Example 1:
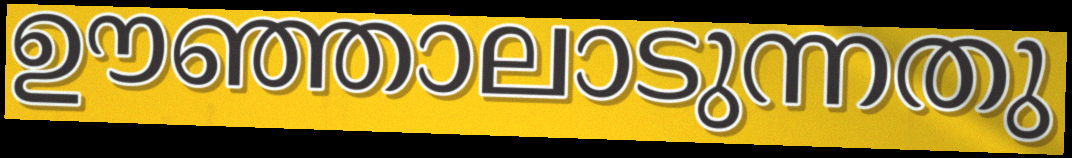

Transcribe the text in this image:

ഊഞ്ഞാലാടുന്നതു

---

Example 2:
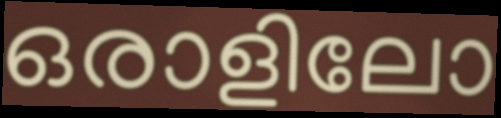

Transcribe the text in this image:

ഒരാളിലോ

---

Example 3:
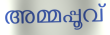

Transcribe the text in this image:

അമ്മപ്പൂവ്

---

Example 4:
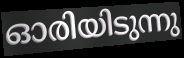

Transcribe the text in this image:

ഓരിയിടുന്നു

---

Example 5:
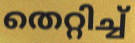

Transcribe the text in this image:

തെറ്റിച്ച്